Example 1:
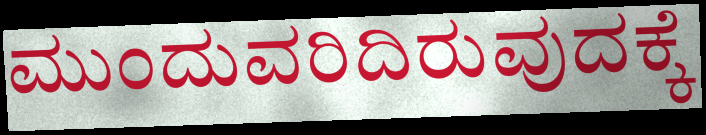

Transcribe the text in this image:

ಮುಂದುವರಿದಿರುವುದಕ್ಕೆ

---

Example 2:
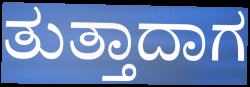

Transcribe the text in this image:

ತುತ್ತಾದಾಗ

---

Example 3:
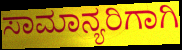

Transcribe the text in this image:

ಸಾಮಾನ್ಯರಿಗಾಗಿ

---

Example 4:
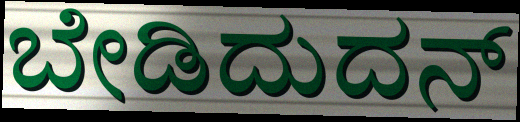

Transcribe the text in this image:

ಬೇಡಿದುದನ್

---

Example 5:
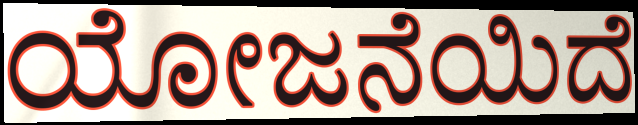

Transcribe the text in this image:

ಯೋಜನೆಯಿದೆ